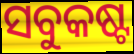
ସବୁକଷ୍ଟ